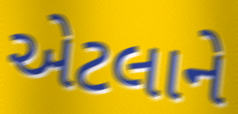
એટલાને